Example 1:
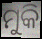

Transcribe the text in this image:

ମୁକି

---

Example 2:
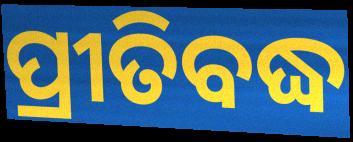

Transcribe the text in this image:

ପ୍ରୀତିବଦ୍ଧ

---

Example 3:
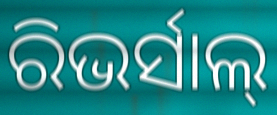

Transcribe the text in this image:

ରିଭର୍ସାଲ୍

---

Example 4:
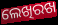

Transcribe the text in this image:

ଲେଖିରଖ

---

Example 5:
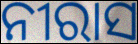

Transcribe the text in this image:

ନୀରାସ